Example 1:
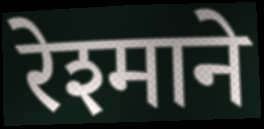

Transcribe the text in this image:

रेश्माने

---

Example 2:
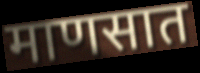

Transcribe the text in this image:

माणसात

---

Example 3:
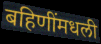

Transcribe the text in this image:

बहिणींमधली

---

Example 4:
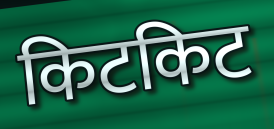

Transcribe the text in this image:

किटकिट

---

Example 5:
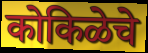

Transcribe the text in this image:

कोकिळेचे